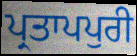
ਪ੍ਰਤਾਪਪੁਰੀ